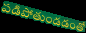
పడిపోతుండడంతో